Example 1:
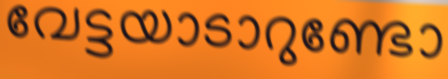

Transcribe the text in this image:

വേട്ടയാടാറുണ്ടോ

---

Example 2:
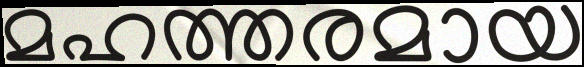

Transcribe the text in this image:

മഹത്തരമായ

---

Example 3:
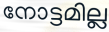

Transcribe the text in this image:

നോട്ടമില്ല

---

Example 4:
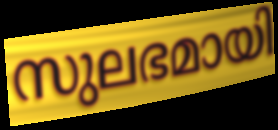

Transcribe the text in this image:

സുലഭമായി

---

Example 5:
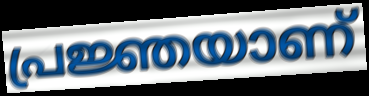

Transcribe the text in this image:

പ്രജ്ഞയാണ്